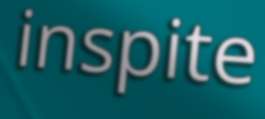
inspite